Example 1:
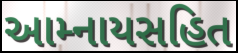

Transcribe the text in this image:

આમ્નાયસહિત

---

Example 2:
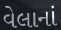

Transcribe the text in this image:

વેલાનાં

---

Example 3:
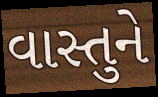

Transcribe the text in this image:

વાસ્તુને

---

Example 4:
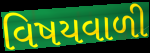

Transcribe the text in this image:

વિષયવાળી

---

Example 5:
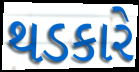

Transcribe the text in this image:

થડકારે